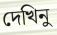
দেখিনু